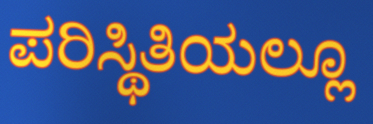
ಪರಿಸ್ಥಿತಿಯಲ್ಲೂ